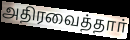
அதிரவைத்தார்